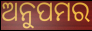
ଅନୁପମର